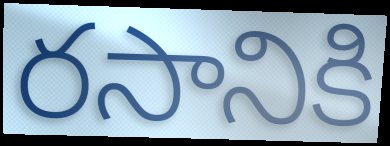
రసానికి